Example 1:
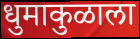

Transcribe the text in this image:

धुमाकुळाला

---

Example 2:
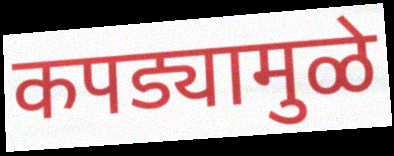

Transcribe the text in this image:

कपड्यामुळे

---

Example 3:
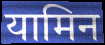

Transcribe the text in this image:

यामिन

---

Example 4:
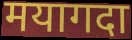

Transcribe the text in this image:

मयागदा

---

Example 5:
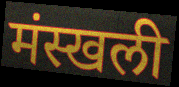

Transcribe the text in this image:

मंस्खली